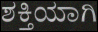
ಶಕ್ತಿಯಾಗಿ